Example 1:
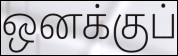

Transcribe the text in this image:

ஒனக்குப்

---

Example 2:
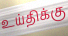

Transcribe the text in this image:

உய்திக்கு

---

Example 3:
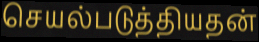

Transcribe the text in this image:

செயல்படுத்தியதன்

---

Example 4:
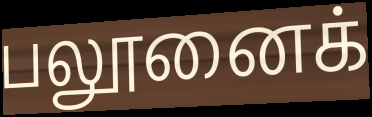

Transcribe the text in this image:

பலூனைக்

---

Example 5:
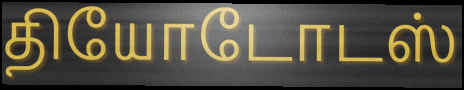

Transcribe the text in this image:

தியோடோடஸ்